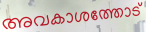
അവകാശത്തോട്